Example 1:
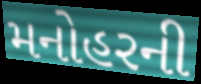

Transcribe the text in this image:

મનોહરની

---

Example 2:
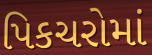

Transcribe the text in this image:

પિકચરોમાં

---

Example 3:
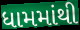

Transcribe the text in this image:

ધામમાંથી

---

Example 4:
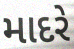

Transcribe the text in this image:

માદરે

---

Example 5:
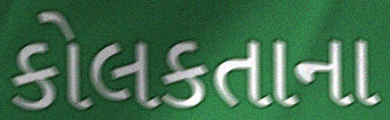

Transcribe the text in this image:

કોલકતાના